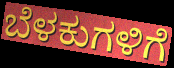
ಬೆಳಕುಗಳಿಗೆ